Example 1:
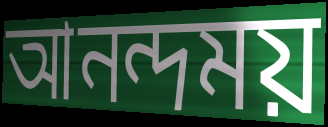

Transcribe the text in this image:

আনন্দময়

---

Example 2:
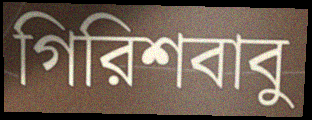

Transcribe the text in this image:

গিরিশবাবু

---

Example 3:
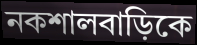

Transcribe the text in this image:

নকশালবাড়িকে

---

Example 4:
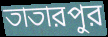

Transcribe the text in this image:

তাতারপুর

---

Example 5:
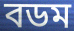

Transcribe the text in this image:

বডম